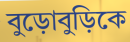
বুড়োবুড়িকে